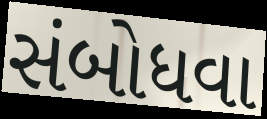
સંબોધવા